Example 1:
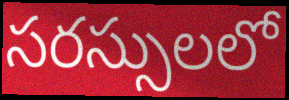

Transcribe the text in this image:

సరస్సులలో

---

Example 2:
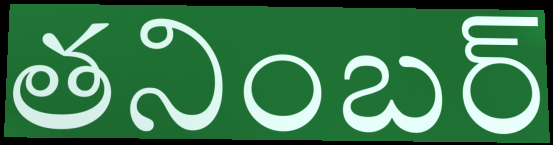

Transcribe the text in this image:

తనింబర్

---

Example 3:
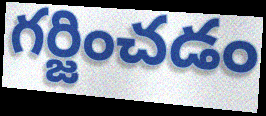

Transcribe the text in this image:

గర్జించడం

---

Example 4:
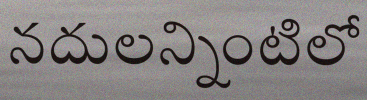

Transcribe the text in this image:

నదులన్నింటిలో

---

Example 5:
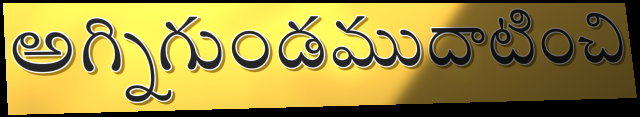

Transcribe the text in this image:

అగ్నిగుండముదాటించి